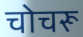
चोचरू